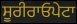
ਸੂਰੀਰਾਓਪੇਟਾ